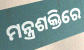
ମନ୍ତ୍ରଶକ୍ତିରେ